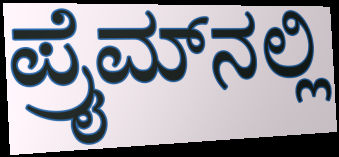
ಪ್ರೈಮ್‌ನಲ್ಲಿ